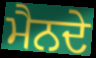
ਮੈਨਦੇ